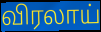
விரலாய்